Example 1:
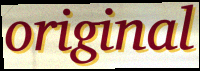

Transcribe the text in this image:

original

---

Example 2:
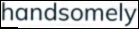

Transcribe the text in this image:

handsomely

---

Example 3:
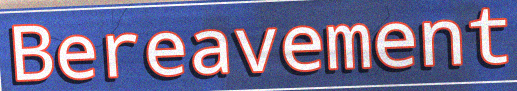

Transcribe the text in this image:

Bereavement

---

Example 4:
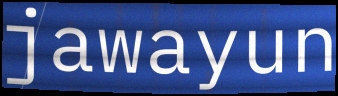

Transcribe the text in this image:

jawayun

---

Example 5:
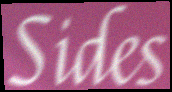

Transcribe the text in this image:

Sides